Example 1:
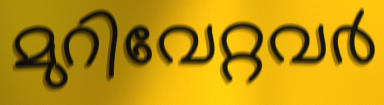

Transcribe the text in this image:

മുറിവേറ്റവർ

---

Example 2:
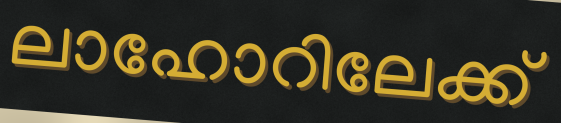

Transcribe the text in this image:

ലാഹോറിലേക്ക്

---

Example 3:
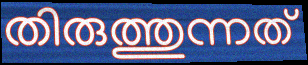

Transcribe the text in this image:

തിരുത്തുന്നത്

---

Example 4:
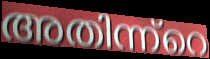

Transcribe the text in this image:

അതിന്ന്റെ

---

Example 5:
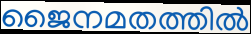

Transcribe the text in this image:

ജൈനമതത്തിൽ